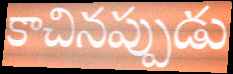
కాచినప్పుడు